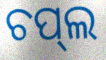
ଚପ୍‌ଲ